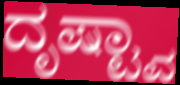
ದೃಷ್ಟ್ವಾ